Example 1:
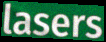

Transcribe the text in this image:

lasers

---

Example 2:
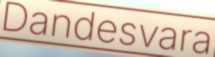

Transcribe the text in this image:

Dandesvara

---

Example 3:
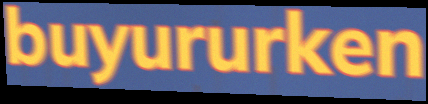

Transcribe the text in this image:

buyururken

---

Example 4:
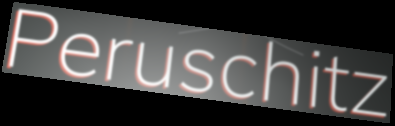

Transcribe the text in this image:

Peruschitz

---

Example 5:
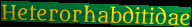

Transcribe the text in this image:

Heterorhabditidae